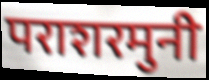
पराशरमुनी